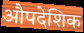
औपदेशिक